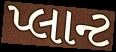
પ્લાન્ટ